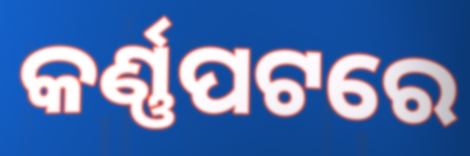
କର୍ଣ୍ଣପଟରେ